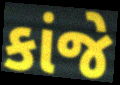
કાંજે